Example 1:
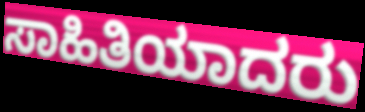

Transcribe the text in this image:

ಸಾಹಿತಿಯಾದರು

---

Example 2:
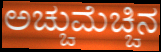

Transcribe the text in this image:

ಅಚ್ಚುಮೆಚ್ಚಿನ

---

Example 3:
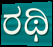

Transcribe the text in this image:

ರಥಿ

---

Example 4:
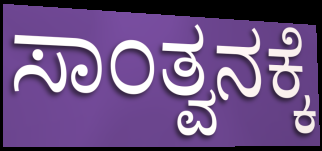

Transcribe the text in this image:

ಸಾಂತ್ವನಕ್ಕೆ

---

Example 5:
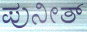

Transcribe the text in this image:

ಪುನೀತ್